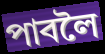
পাবলৈ